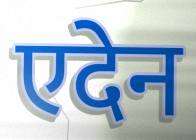
एदेन